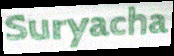
Suryacha